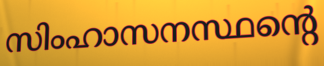
സിംഹാസനസ്ഥന്റെ